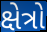
ક્ષેત્રો